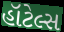
હૉટેલ્સ